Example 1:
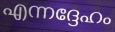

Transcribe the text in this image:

എന്നദ്ദേഹം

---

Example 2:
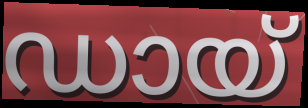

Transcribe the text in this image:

ഡായ്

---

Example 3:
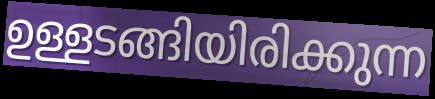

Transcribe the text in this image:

ഉള്ളടങ്ങിയിരിക്കുന്ന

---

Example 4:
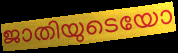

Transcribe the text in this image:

ജാതിയുടെയോ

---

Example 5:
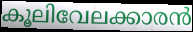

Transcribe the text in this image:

കൂലിവേലക്കാരൻ